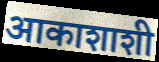
आकाशाशी